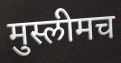
मुस्लीमच